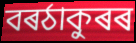
বৰঠাকুৰৰ